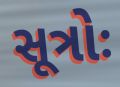
સૂત્રોઃ